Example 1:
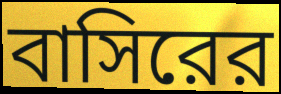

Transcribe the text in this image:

বাসিরের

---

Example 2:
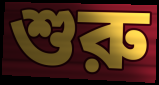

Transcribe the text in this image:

শুরু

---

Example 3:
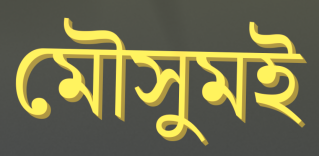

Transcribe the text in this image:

মৌসুমই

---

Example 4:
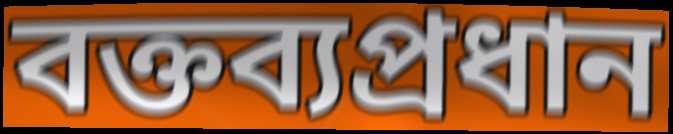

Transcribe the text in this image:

বক্তব্যপ্রধান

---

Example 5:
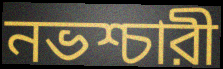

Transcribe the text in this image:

নভশ্চারী